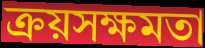
ক্রয়সক্ষমতা